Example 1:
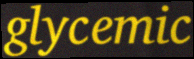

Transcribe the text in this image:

glycemic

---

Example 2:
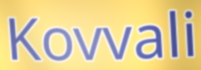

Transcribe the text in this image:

Kovvali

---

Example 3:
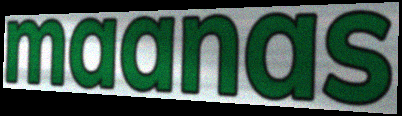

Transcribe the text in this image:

maanas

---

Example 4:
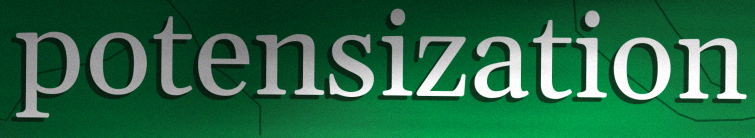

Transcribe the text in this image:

potensization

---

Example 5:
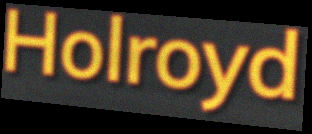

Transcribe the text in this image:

Holroyd